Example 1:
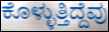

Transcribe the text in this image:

ಕೊಳ್ಳುತ್ತಿದ್ದೆವು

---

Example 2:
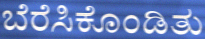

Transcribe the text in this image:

ಬೆರೆಸಿಕೊಂಡಿತು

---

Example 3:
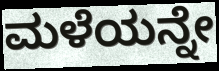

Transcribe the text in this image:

ಮಳೆಯನ್ನೇ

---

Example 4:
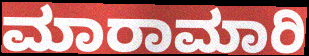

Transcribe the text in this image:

ಮಾರಾಮಾರಿ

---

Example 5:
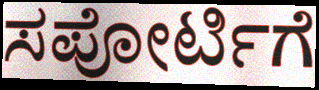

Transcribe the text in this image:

ಸಪೋರ್ಟಿಗೆ